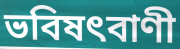
ভবিষৎবাণী